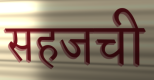
सहजची